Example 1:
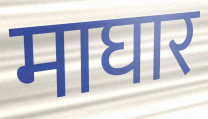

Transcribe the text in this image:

माघार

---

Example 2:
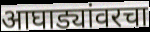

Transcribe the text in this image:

आघाड्यांवरचा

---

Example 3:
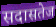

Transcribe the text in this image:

सदासतेज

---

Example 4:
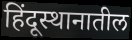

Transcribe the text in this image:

हिंदूस्थानातील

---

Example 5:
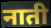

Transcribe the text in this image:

नाती